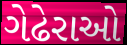
ગેઢેરાઓ